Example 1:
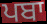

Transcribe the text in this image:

ਪਬਾ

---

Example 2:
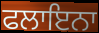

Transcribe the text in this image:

ਫਲਾਇਨਾ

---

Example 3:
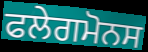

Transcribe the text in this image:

ਫਲੇਗਮੋਨਸ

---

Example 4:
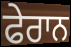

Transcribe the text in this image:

ਫੇਰਾਨ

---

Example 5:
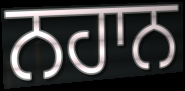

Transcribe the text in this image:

ਨਹਾਨ